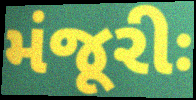
મંજૂરીઃ